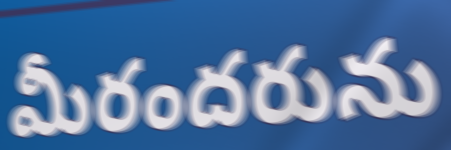
మీరందరును